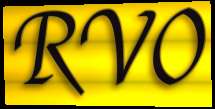
RVO